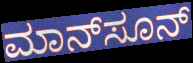
ಮಾನ್‌ಸೂನ್